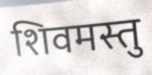
शिवमस्तु